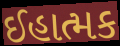
ઈહાત્મક